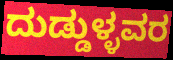
ದುಡ್ಡುಳ್ಳವರ